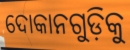
ଦୋକାନଗୁଡ଼ିକୁ